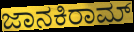
ಜಾನಕಿರಾಮ್